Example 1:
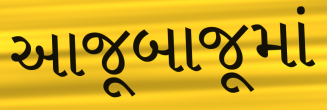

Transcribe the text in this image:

આજૂબાજૂમાં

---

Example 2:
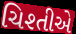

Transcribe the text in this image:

ચિશ્તીએ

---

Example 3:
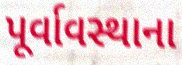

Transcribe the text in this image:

પૂર્વાવસ્થાના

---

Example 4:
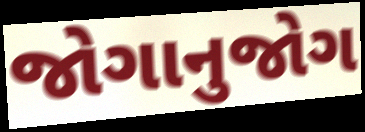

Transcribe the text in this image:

જોગાનુજોગ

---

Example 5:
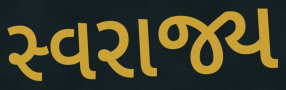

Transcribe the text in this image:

સ્વરાજ્ય